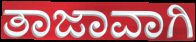
ತಾಜಾವಾಗಿ